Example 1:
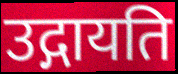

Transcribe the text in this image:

उद्गायति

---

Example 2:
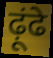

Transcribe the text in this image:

ढ़ूंढे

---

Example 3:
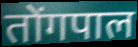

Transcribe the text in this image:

तोंगपाल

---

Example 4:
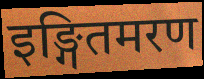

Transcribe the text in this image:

इङ्गितमरण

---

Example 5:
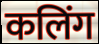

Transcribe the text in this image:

कलिंग